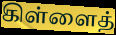
கிள்ளைத்